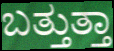
ಬತ್ತುತ್ತಾ